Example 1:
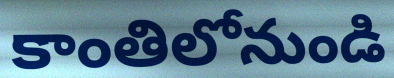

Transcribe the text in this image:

కాంతిలోనుండి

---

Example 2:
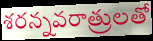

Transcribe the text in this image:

శరన్నవరాత్రులతో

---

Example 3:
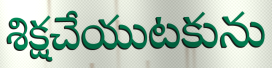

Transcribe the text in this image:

శిక్షచేయుటకును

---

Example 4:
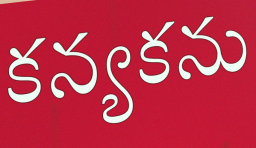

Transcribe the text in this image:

కన్యకను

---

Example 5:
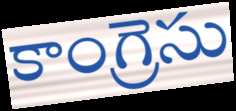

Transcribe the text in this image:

కాంగ్రెసు